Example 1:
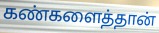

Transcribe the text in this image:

கண்களைத்தான்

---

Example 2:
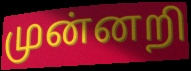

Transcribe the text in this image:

முன்னறி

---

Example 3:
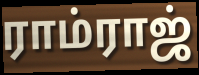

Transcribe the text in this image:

ராம்ராஜ்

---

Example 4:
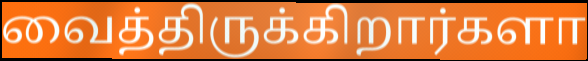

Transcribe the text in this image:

வைத்திருக்கிறார்களா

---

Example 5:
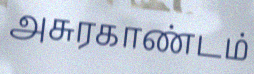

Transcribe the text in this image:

அசுரகாண்டம்